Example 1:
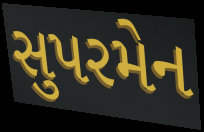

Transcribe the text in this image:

સુપરમેન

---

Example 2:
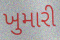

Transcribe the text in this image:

ખુમારી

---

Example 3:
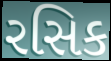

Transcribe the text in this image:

રસિક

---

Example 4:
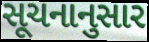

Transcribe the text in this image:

સૂચનાનુસાર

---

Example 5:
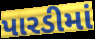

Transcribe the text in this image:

પારડીમાં